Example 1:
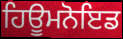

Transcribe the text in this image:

ਹਿਊਮਨੋਇਡ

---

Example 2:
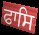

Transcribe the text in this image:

ਫਾਸਿ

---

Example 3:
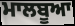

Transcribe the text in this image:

ਮਾਲਬੂਆ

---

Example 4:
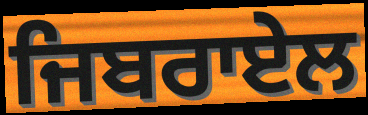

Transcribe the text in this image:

ਜਿਬਰਾਏਲ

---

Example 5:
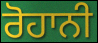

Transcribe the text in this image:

ਰੋਹਾਨੀ